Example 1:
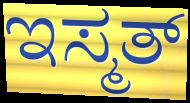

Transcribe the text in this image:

ಇಸ್ಮತ್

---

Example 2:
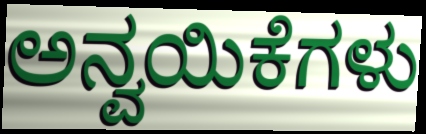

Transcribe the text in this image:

ಅನ್ವಯಿಕೆಗಳು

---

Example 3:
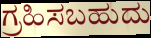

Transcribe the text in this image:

ಗ್ರಹಿಸಬಹುದು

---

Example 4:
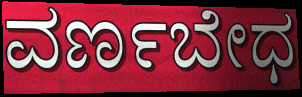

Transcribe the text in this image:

ವರ್ಣಬೇಧ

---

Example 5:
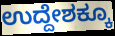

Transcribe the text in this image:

ಉದ್ದೇಶಕ್ಕೂ